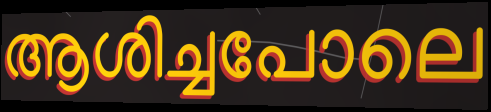
ആശിച്ചപോലെ